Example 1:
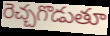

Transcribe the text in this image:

రెచ్చగొడుతూ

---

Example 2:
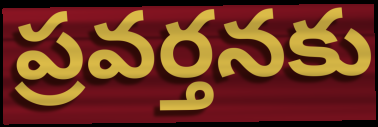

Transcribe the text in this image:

ప్రవర్తనకు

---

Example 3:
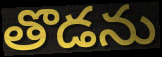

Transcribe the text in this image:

తొడను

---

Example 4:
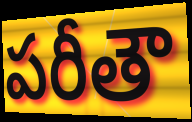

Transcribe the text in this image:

పరీతౌ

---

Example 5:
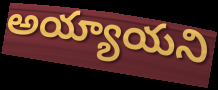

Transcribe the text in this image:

అయ్యాయని